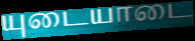
யுடையாடை